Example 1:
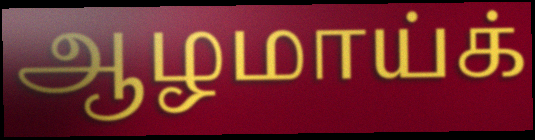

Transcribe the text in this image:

ஆழமாய்க்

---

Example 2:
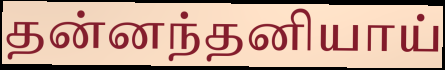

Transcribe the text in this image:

தன்னந்தனியாய்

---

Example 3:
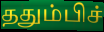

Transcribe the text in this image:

ததும்பிச்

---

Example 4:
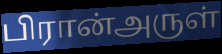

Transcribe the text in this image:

பிரான்அருள்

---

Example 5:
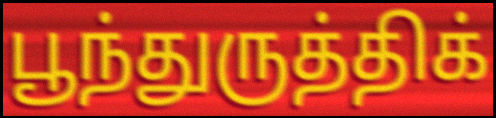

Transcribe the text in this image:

பூந்துருத்திக்